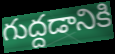
గుద్దడానికి